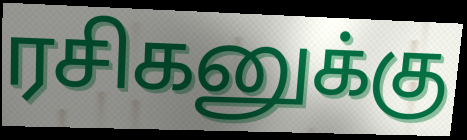
ரசிகனுக்கு